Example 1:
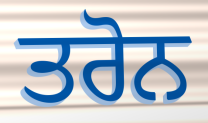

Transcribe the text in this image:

ਤਰੋਨ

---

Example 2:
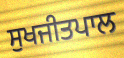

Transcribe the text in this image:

ਸੁਖਜੀਤਪਾਲ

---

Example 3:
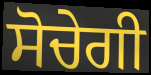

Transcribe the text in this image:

ਸੋਚੇਗੀ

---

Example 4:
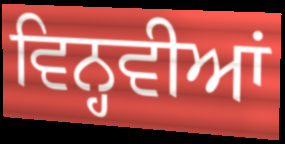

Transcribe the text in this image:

ਵਿਨ੍ਹਵੀਆਂ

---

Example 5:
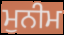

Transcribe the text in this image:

ਮੁਨੀਮ